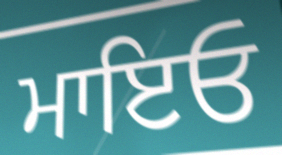
ਮਾਇਓ